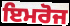
ਇਮਰੋਜ